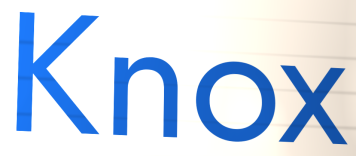
Knox